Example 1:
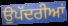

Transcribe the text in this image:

ਉਪੱਦਰੀਆਂ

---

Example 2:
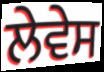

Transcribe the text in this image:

ਲੇਵੇਸ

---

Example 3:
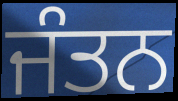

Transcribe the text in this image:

ਜੰਤਨ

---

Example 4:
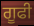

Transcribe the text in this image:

ਗੂਫੀ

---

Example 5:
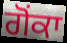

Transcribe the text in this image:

ਗੋਂਕਾ